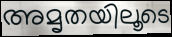
അമൃതയിലൂടെ